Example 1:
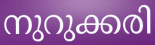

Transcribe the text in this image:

നുറുക്കരി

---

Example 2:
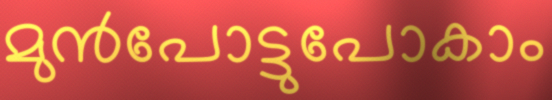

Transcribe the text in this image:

മുൻപോട്ടുപോകാം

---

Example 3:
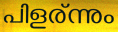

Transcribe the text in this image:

പിളര്ന്നും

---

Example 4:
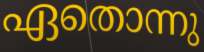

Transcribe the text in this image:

ഏതൊന്നു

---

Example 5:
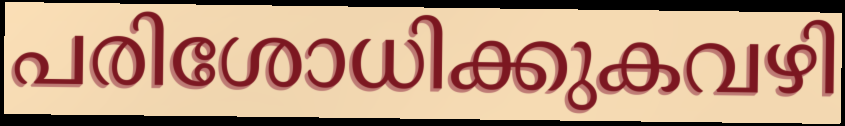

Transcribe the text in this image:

പരിശോധിക്കുകവഴി